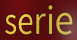
serie